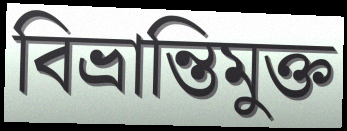
বিভ্রান্তিমুক্ত